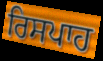
ਰਿਸਪਾਹ